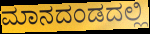
ಮಾನದಂಡದಲ್ಲಿ